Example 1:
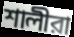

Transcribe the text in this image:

শালীরা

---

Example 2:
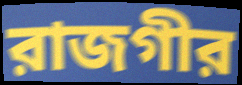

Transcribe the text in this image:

রাজগীর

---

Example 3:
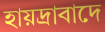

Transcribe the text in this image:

হায়দ্রাবাদে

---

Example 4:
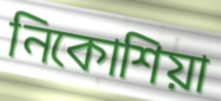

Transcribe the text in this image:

নিকোশিয়া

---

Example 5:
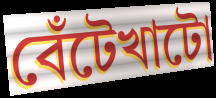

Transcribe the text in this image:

বেঁটেখাটো